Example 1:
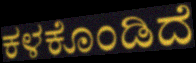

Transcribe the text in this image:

ಕಳಕೊಂಡಿದೆ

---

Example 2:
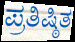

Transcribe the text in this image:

ಪ್ರತಿಷ್ಠಿತ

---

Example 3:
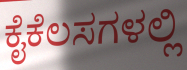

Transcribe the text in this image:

ಕೈಕೆಲಸಗಳಲ್ಲಿ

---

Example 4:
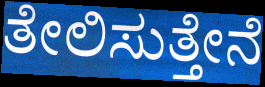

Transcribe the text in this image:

ತೇಲಿಸುತ್ತೇನೆ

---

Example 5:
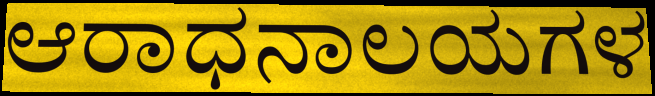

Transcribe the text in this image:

ಆರಾಧನಾಲಯಗಳ